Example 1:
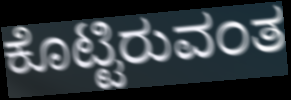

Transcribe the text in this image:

ಕೊಟ್ಟಿರುವಂತ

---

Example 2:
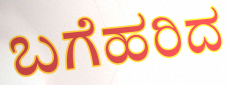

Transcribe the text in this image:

ಬಗೆಹರಿದ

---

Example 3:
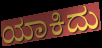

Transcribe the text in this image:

ಯಾಕಿದು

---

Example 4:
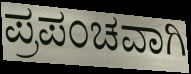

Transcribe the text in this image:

ಪ್ರಪಂಚವಾಗಿ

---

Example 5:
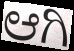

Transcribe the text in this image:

ಆಗಿ